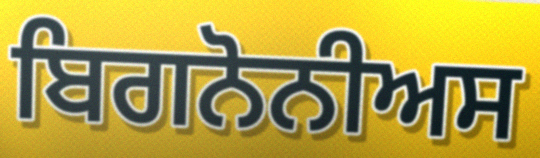
ਬਿਗਨੋਨੀਅਸ